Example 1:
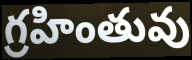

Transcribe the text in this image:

గ్రహింతువు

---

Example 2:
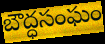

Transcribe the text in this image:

బౌద్ధసంఘం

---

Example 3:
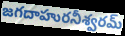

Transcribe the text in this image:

జగదాహురనీశ్వరమ్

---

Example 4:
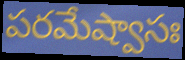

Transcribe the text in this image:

పరమేష్వాసః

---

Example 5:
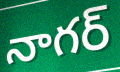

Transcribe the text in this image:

నాగర్